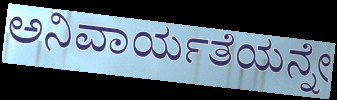
ಅನಿವಾರ್ಯತೆಯನ್ನೇ